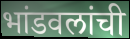
भांडवलांची